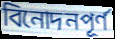
বিনোদনপূর্ণ